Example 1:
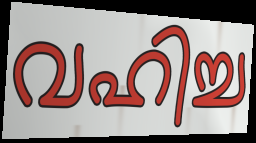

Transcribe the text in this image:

വഹിച്ച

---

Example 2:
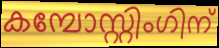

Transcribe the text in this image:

കമ്പോസ്റ്റിംഗിന്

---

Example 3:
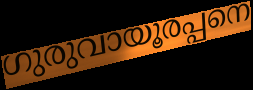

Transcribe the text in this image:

ഗുരുവായൂരപ്പനെ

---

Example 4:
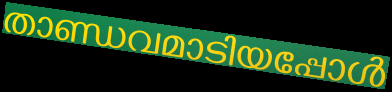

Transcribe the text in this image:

താണ്ഡവമാടിയപ്പോൾ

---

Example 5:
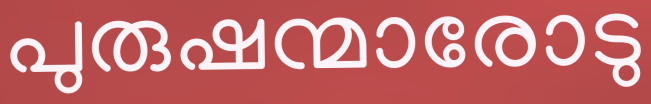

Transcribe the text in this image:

പുരുഷന്മാരോടു